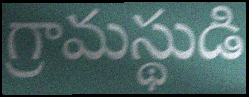
గ్రామస్థుడి